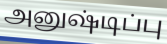
அனுஷ்டிப்பு